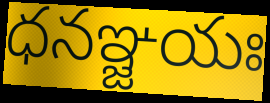
ధనఞ్జయః